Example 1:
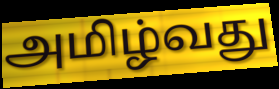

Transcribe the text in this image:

அமிழ்வது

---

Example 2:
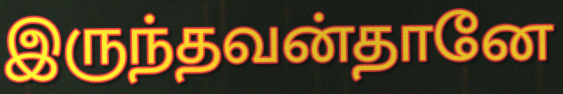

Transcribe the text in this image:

இருந்தவன்தானே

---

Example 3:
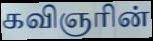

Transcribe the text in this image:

கவிஞரின்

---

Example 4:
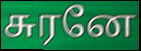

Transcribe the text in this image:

சுரனே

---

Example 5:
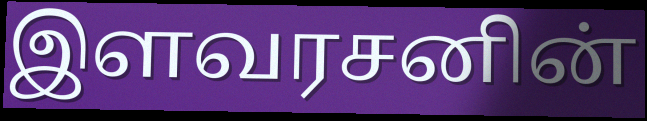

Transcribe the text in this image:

இளவரசனின்